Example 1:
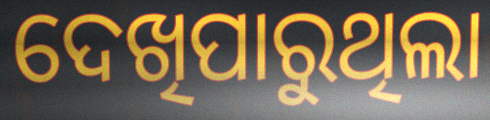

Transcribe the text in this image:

ଦେଖିପାରୁଥିଲା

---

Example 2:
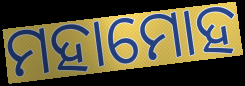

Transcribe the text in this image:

ମହାମୋହ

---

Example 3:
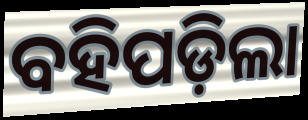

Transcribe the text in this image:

ବହିପଡ଼ିଲା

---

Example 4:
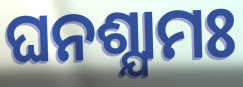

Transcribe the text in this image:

ଘନଶ୍ଯାମଃ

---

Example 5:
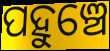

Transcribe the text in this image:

ପହୁଞ୍ଚେ